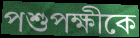
পশুপক্ষীকে